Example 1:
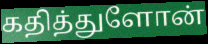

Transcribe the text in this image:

கதித்துளோன்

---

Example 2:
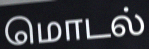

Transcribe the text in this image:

மொடல்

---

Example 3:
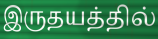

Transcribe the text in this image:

இருதயத்தில்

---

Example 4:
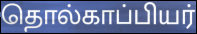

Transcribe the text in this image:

தொல்காப்பியர்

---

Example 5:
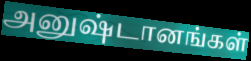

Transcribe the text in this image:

அனுஷ்டானங்கள்